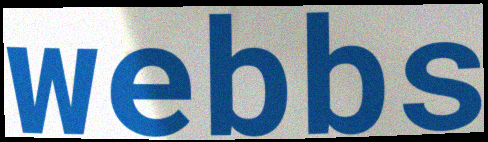
webbs